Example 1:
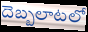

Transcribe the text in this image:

దెబ్బలాటలో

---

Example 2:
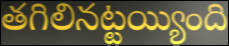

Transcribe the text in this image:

తగిలినట్టయ్యింది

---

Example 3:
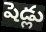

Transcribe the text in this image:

షెడ్లు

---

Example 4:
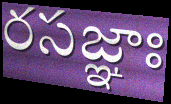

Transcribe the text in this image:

రసజ్ఞాః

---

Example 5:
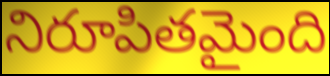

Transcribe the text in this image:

నిరూపితమైంది